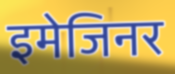
इमेजिनर